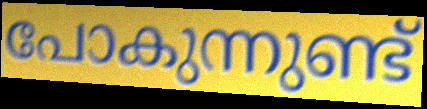
പോകുന്നുണ്ട്